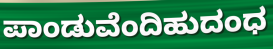
ಪಾಂಡುವೆಂದಿಹುದಂಧ